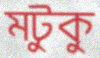
মটুকু